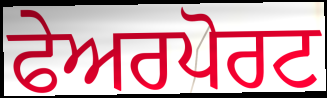
ਫੇਅਰਪੋਰਟ